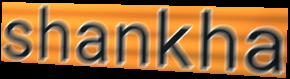
shankha